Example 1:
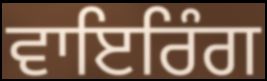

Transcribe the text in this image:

ਵਾਇਰਿੰਗ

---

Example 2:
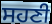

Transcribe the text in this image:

ਸਹਣੀ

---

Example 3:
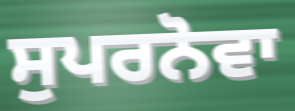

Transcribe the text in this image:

ਸੁਪਰਨੋਵਾ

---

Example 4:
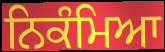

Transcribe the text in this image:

ਨਿਕੰਮਿਆ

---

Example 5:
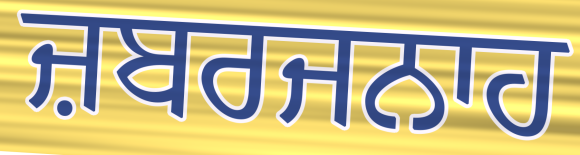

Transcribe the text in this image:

ਜ਼ਬਰਜਨਾਹ